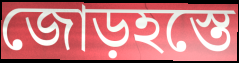
জোড়হস্তে